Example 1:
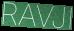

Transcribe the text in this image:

RAVJI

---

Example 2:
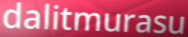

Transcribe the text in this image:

dalitmurasu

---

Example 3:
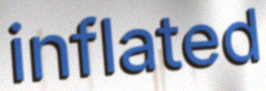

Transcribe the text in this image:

inflated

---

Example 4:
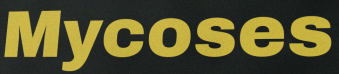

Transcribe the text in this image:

Mycoses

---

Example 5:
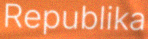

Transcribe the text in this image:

Republika